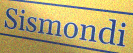
Sismondi